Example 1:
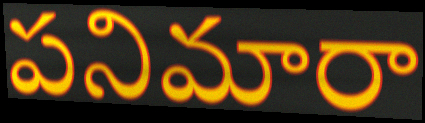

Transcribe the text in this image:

పనిమారా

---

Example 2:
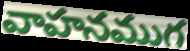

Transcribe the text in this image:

వాహనముగ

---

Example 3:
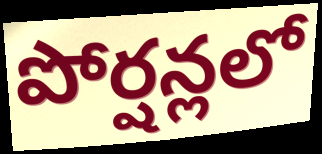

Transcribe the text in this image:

పోర్షన్లలో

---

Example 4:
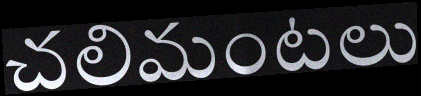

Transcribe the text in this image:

చలిమంటలు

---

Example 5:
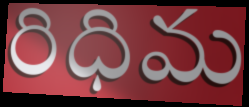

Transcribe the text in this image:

రిధిమ